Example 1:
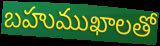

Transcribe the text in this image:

బహుముఖాలతో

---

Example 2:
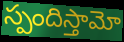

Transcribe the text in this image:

స్పందిస్తామో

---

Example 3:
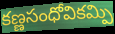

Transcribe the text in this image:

కణ్ణసంధోవికమ్పి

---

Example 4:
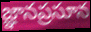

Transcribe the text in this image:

జ్ఞానప్రసూన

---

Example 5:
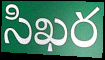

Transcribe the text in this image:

సిఖర